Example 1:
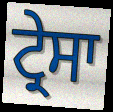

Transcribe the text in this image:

ਟ੍ਰੇਸਾ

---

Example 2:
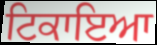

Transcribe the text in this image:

ਟਿਕਾਇਆ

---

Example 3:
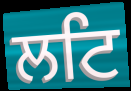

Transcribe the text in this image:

ਲਟਿ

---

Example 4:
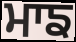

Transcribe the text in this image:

ਮਾਙ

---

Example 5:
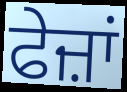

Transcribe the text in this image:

ਫੇਜ਼ਾਂ